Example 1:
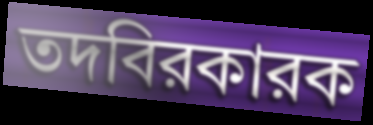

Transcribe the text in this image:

তদবিরকারক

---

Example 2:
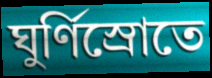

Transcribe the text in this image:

ঘুর্ণিস্রোতে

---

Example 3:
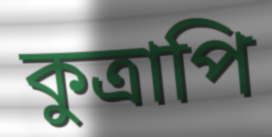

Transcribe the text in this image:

কুত্রাপি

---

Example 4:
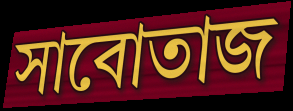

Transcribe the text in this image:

সাবোতাজ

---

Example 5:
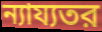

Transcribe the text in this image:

ন্যায্যতর